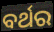
ବର୍ଥର